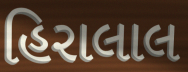
હિરાલાલ